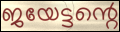
ജയേട്ടന്റെ